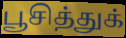
பூசித்துக்